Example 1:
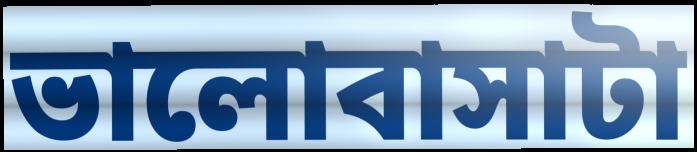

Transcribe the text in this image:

ভালোবাসাটা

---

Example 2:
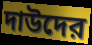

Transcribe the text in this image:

দাউদের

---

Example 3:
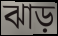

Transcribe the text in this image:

ঝাড়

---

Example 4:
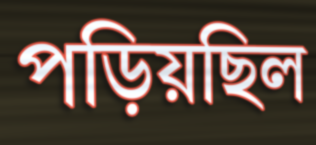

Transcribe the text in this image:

পড়িয়ছিল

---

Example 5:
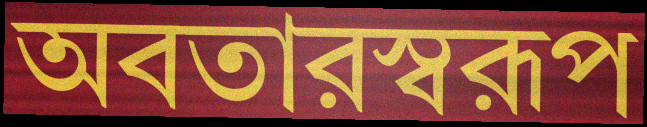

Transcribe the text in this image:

অবতারস্বরূপ